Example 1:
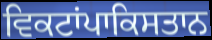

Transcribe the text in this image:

ਵਿਕਟਾਂਪਾਕਿਸਤਾਨ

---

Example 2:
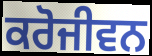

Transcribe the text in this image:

ਕਰੋਜੀਵਨ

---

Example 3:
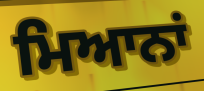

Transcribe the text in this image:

ਮਿਆਨਾਂ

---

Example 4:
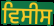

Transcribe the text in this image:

ਵਿਸੀਸ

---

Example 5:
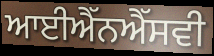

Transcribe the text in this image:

ਆਈਐੱਨਐੱਸਵੀ